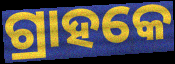
ଗ୍ରାହକେ